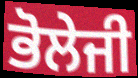
ਭੋਲੇਜੀ